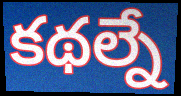
కథల్నే